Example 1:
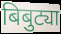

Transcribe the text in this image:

बिबुट्या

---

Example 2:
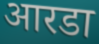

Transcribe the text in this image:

आरडा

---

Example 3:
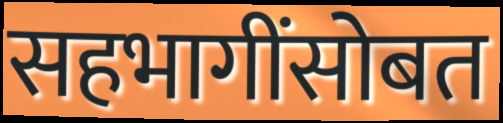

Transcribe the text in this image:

सहभागींसोबत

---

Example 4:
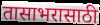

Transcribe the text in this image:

तासाभरासाठी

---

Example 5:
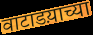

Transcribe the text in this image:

वाटाडय़ाच्या